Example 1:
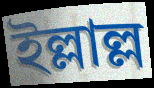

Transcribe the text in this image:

ইল্লাল্ল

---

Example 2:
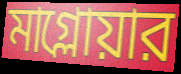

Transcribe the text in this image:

মাগ্লোয়ার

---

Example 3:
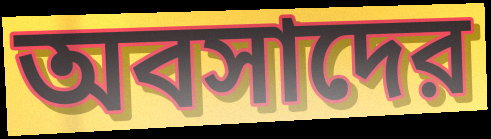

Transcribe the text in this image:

অবসাদের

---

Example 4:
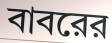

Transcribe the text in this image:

বাবরের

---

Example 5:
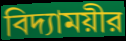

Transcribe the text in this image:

বিদ্যাময়ীর